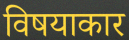
विषयाकार